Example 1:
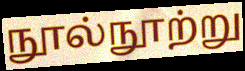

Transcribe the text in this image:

நூல்நூற்று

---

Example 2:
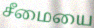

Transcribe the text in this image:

சீமையை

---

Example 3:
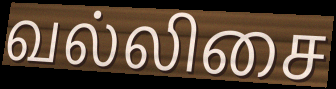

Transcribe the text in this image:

வல்லிசை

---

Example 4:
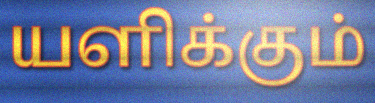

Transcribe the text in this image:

யளிக்கும்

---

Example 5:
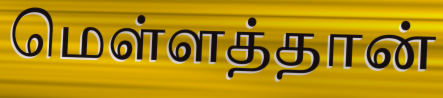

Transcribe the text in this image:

மெள்ளத்தான்